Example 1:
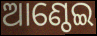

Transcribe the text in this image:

ଆଣ୍ଠେଇ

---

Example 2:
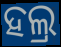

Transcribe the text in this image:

ହଲ୍ର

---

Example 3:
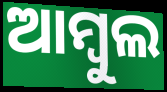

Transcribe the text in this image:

ଆମ୍ବୁଲ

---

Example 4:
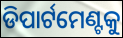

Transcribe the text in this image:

ଡିପାର୍ଟମେଣ୍ଟକୁ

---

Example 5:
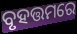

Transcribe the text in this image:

ବୃହତ୍ତମରେ